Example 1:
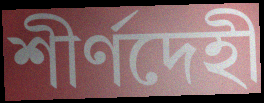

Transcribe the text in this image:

শীর্ণদেহী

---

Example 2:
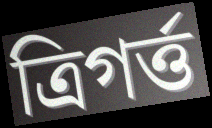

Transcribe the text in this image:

ত্রিগর্ত্ত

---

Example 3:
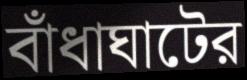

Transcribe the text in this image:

বাঁধাঘাটের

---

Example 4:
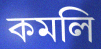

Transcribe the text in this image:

কমলি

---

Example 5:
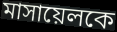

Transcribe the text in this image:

মাসায়েলকে